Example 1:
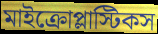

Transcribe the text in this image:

মাইক্রোপ্লাস্টিকস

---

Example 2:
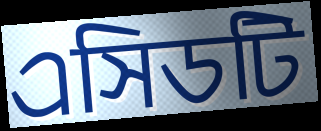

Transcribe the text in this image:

এসিডটি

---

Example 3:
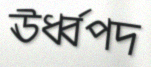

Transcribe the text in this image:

ঊর্ধ্বপদ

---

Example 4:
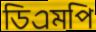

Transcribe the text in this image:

ডিএমপি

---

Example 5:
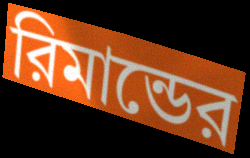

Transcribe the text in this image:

রিমান্ডের